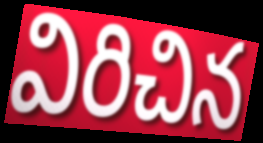
విరిచిన